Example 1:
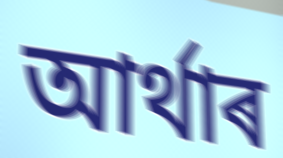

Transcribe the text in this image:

আৰ্থাৰ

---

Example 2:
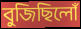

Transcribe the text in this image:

বুজিছিলোঁ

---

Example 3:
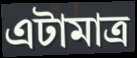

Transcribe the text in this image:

এটামাত্ৰ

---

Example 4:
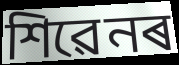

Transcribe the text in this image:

শিৱেনৰ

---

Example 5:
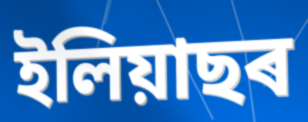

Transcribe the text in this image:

ইলিয়াছৰ